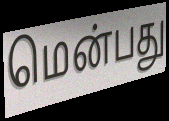
மென்பது